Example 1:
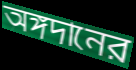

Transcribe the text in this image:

অঙ্গদানের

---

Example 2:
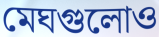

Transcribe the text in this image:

মেঘগুলোও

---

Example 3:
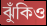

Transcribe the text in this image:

ঝুঁকিও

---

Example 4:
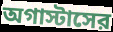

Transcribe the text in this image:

অগাস্টাসের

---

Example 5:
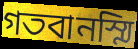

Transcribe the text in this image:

গতবানস্মি